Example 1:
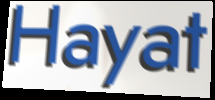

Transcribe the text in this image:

Hayat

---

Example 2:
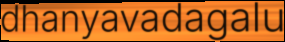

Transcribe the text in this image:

dhanyavadagalu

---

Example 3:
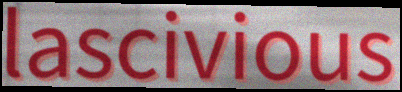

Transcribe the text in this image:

lascivious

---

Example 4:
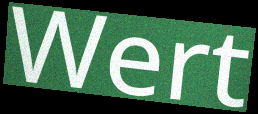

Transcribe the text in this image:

Wert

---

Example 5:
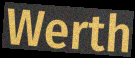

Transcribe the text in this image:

Werth